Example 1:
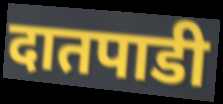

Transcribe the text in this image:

दातपाडी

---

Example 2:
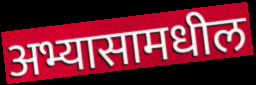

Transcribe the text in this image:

अभ्यासामधील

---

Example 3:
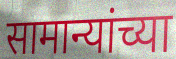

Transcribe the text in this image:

सामान्यांच्या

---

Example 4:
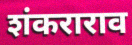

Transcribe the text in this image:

शंकराराव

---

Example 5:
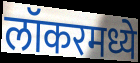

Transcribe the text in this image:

लॉकरमध्ये